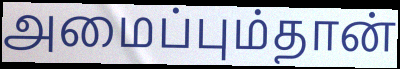
அமைப்பும்தான்